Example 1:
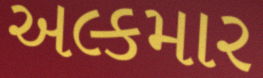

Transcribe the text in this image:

અલ્કમાર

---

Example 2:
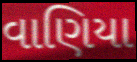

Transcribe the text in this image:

વાણિયા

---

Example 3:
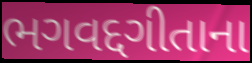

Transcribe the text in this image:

ભગવદ્દગીતાના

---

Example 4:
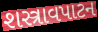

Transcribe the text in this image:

શસ્ત્રાવપાટન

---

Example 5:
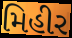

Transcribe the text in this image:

મિહીર